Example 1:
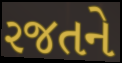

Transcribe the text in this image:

રજતને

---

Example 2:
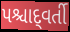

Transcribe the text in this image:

પશ્ચાદ્‌વર્તી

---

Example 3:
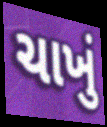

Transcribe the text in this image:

ચાખું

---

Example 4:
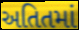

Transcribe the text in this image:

અતિતમાં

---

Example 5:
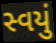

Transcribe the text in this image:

સ્વયું